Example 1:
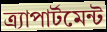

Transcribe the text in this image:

ত্র্যাপার্টমেন্ট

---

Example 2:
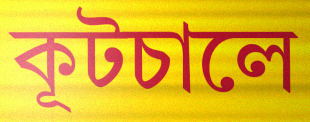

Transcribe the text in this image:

কূটচালে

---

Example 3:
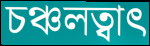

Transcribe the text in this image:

চঞ্চলত্বাৎ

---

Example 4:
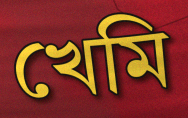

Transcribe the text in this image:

খেমি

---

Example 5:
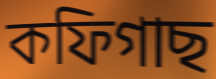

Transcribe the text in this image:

কফিগাছ